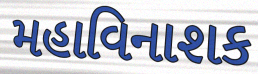
મહાવિનાશક